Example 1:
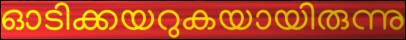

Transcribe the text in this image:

ഓടിക്കയറുകയായിരുന്നു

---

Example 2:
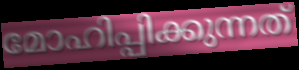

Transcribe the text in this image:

മോഹിപ്പിക്കുന്നത്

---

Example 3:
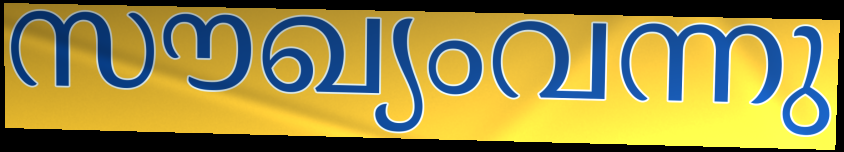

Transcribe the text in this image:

സൗഖ്യംവന്നു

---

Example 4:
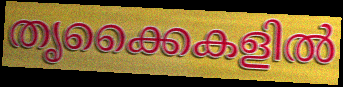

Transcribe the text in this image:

തൃക്കൈകളിൽ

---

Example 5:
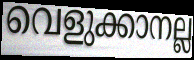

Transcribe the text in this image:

വെളുക്കാനല്ല